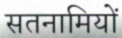
सतनामियों